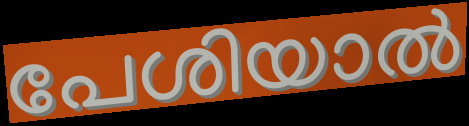
പേശിയാൽ